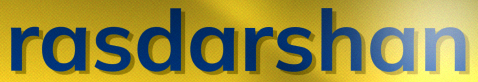
rasdarshan